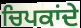
ਚਿਪਕਾਂਦੇ